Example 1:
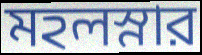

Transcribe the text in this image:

মহলস্নার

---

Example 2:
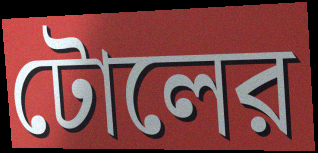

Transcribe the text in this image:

টোলের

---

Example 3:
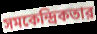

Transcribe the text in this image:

সমকেন্দ্রিকতার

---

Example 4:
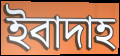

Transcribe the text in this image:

ইবাদাহ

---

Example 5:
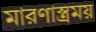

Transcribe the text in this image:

মারণাস্ত্রময়